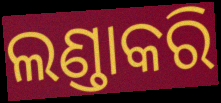
ଲଣ୍ଡାକରି